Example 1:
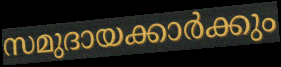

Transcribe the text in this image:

സമുദായക്കാർക്കും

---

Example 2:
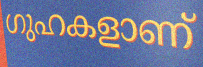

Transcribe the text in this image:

ഗുഹകളാണ്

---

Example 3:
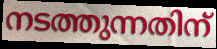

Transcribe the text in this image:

നടത്തുന്നതിന്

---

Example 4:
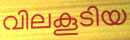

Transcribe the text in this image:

വിലകൂടിയ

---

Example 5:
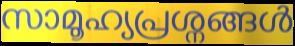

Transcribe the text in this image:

സാമൂഹ്യപ്രശ്നങ്ങൾ